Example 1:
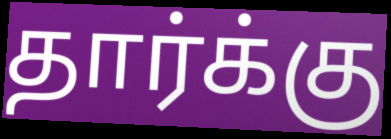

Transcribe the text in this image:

தார்க்கு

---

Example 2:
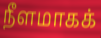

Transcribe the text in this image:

நீளமாகக்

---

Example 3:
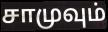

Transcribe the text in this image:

சாமுவும்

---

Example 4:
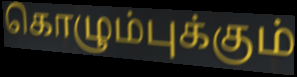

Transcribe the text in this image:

கொழும்புக்கும்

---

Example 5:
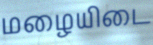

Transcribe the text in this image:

மழையிடை